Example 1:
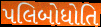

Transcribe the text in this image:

પલિબોધોતિ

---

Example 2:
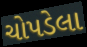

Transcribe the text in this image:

ચોપડેલા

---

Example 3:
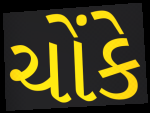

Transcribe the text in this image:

ચોંકે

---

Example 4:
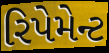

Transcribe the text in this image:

રિપેમેન્ટ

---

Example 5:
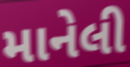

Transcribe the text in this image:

માનેલી